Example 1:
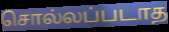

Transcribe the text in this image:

சொல்லப்படாத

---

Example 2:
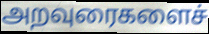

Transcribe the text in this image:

அறவுரைகளைச்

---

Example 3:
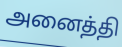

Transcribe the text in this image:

அனைத்தி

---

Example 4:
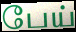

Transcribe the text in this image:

பேய்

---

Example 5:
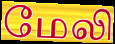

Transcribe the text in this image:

மேலி